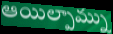
ఆయిల్పామ్ను